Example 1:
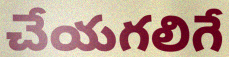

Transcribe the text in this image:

చేయగలిగే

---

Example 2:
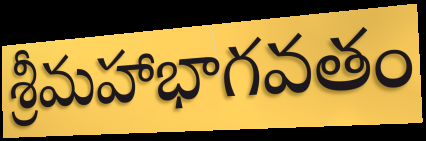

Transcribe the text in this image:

శ్రీమహాభాగవతం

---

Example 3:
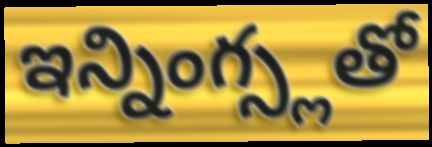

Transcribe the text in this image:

ఇన్నింగ్స్లతో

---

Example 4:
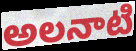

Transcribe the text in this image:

అలనాటి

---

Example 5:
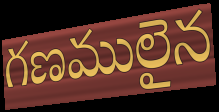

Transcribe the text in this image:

గణములైన